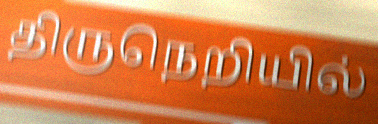
திருநெறியில்